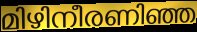
മിഴിനീരണിഞ്ഞ